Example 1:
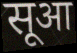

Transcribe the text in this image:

सूआ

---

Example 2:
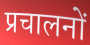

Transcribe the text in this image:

प्रचालनों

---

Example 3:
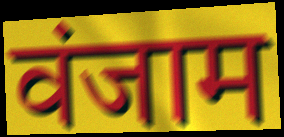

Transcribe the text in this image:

वंजाम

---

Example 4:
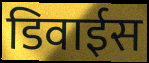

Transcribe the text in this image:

डिवाईस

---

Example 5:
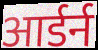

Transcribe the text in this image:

आर्डर्न